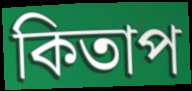
কিতাপ